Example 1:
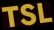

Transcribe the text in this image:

TSL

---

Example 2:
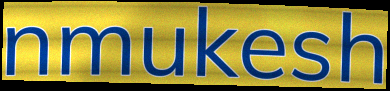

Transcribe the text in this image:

nmukesh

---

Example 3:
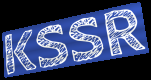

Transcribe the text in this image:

KSSR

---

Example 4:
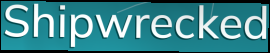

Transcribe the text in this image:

Shipwrecked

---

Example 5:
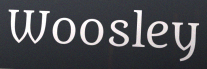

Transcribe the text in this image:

Woosley